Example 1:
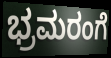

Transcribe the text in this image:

ಭ್ರಮರಂಗೆ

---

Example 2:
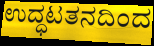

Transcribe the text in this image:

ಉದ್ಧಟತನದಿಂದ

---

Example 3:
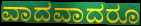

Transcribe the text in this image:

ವಾದವಾದರೂ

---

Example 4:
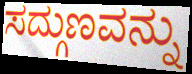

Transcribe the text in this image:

ಸದ್ಗುಣವನ್ನು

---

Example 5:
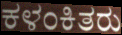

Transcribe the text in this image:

ಕಳಂಕಿತರು